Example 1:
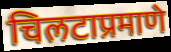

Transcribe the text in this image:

चिलटाप्रमाणे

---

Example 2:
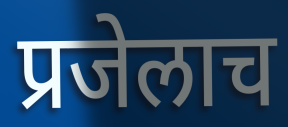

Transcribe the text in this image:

प्रजेलाच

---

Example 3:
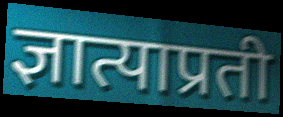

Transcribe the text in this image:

ज्ञात्याप्रती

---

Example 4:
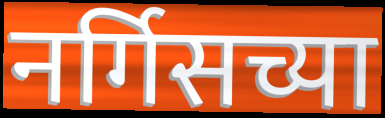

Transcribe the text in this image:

नर्गिसच्या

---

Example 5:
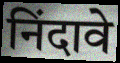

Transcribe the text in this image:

निंदावे